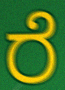
ರೆ